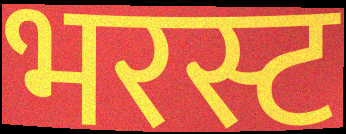
भरस्ट